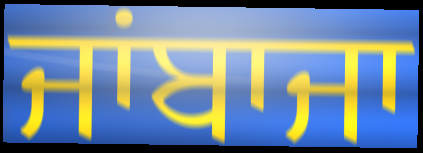
ਜਾਂਬਾਜਾ